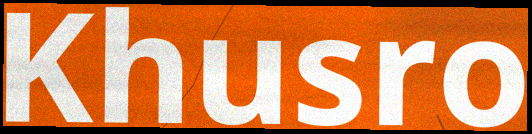
Khusro